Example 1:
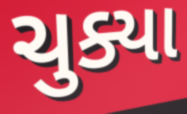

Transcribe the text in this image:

ચુક્યા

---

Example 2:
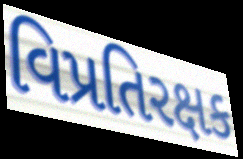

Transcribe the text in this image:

વિપ્રતિરક્ષક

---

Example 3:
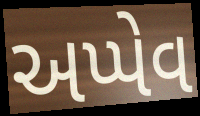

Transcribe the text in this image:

અપ્પેવ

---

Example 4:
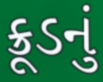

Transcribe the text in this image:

ક્રૂડનું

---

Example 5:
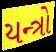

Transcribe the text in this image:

યન્ત્રો